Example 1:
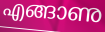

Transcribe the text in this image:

എങ്ങാണു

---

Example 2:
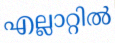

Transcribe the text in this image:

എല്ലാറ്റിൽ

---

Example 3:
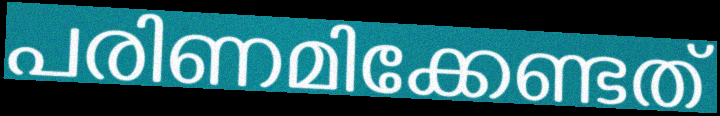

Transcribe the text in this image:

പരിണമിക്കേണ്ടത്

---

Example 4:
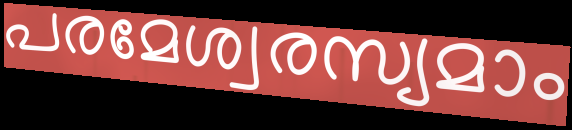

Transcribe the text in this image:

പരമേശ്വരസ്യമാം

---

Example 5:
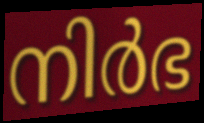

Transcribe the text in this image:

നിർഭ